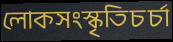
লোকসংস্কৃতিচর্চা